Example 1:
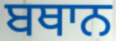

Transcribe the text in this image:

ਬਥਾਨ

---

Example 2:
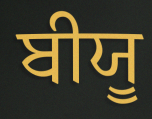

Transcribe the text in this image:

ਬੀਯੂ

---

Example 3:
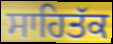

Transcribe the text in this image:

ਸਾਹਿਤੱਕ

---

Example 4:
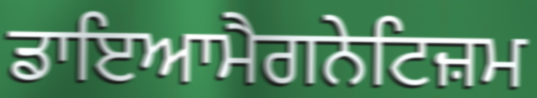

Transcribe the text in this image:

ਡਾਇਆਮੈਗਨੇਟਿਜ਼ਮ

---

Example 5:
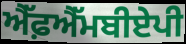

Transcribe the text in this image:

ਐੱਫ਼ਐੱਮਬੀਏਪੀ